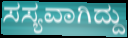
ಸಸ್ಯವಾಗಿದ್ದು